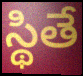
స్థితే